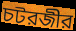
চটরজীর